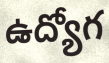
ఉద్యోగ